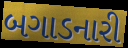
બગાડનારી